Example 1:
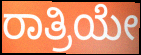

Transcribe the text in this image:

ರಾತ್ರಿಯೇ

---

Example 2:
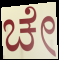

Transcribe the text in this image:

ಚೇ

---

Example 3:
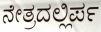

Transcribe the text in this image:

ನೇತ್ರದಲ್ಲಿರ್ಪ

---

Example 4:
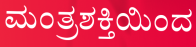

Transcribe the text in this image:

ಮಂತ್ರಶಕ್ತಿಯಿಂದ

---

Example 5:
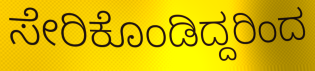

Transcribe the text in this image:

ಸೇರಿಕೊಂಡಿದ್ದರಿಂದ